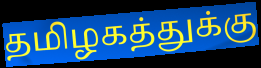
தமிழகத்துக்கு